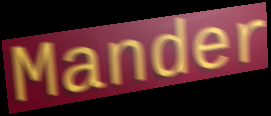
Mander